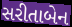
સરીતાબેન